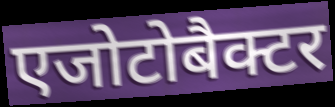
एजोटोबैक्टर